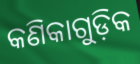
କଣିକାଗୁଡ଼ିକ